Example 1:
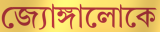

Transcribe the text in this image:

জ্যোঙ্গালোকে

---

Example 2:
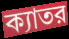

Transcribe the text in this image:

ক্যাতর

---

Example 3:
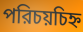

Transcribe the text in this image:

পরিচয়চিহ্ন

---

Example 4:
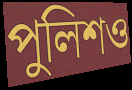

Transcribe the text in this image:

পুলিশও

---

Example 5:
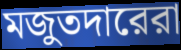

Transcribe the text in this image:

মজুতদারেরা